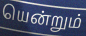
யென்றும்